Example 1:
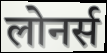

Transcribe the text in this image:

लोनर्स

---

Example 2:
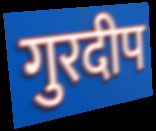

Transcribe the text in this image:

गुरदीप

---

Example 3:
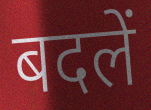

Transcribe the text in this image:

बदलें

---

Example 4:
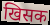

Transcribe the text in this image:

खिसक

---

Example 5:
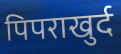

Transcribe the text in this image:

पिपराखुर्द